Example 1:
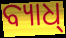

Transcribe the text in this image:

ବ୍ୟାଧ୍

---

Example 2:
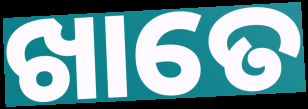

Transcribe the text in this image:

ଖାତେ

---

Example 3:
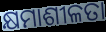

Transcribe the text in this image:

କ୍ଷମାଶୀଳତା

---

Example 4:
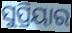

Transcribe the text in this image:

ସୁପ୍ରିୟାର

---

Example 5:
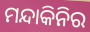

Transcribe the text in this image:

ମନ୍ଦାକିନିର